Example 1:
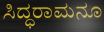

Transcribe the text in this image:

ಸಿದ್ಧರಾಮನೂ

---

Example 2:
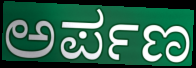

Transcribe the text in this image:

ಅರ್ಪಣ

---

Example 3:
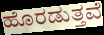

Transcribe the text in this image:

ಹೊರಡುತ್ತವೆ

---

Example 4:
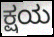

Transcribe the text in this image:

ಕ್ಷಯ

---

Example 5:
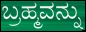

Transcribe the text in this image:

ಬ್ರಹ್ಮವನ್ನು